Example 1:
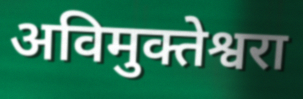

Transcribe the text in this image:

अविमुक्तेश्वरा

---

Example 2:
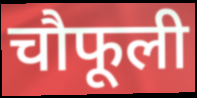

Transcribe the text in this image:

चौफूली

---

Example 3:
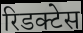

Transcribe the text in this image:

रिडक्टेस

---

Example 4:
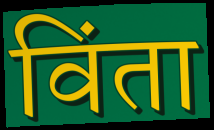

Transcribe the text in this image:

विंता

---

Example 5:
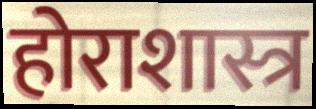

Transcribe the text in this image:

होराशास्त्र